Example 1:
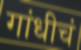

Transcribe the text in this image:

गांधीचं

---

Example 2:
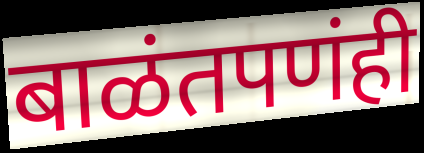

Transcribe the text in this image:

बाळंतपणंही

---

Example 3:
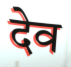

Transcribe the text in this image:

देव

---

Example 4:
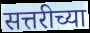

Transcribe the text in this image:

सत्तरीच्या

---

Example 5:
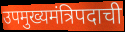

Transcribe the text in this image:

उपमुख्यमंत्रिपदाची